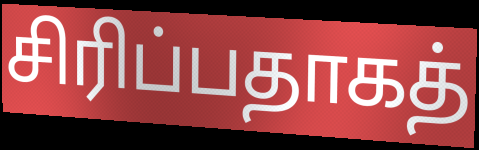
சிரிப்பதாகத்